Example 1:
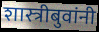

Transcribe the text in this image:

शास्त्रीबुवांनी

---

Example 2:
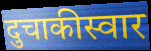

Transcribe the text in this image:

दुचाकीस्वार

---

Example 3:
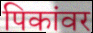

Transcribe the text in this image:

पिकांवर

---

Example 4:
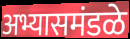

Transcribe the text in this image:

अभ्यासमंडळे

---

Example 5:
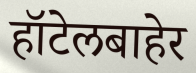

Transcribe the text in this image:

हॉटेलबाहेर